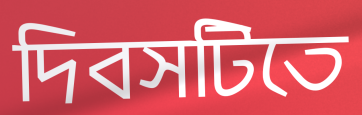
দিবসটিতে